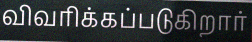
விவரிக்கப்படுகிறார்